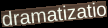
dramatizatio